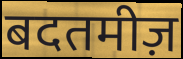
बदतमीज़